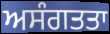
ਅਸੰਗਤਤਾ